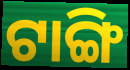
ଟାଙ୍ଗି